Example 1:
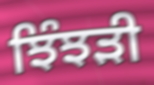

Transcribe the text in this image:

ਝਿੰਝੜੀ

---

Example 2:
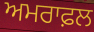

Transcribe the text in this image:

ਅਮਰਾਫ਼ਲ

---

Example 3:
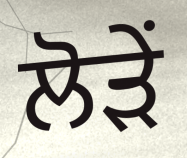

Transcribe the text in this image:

ਲੋੜੇਂ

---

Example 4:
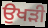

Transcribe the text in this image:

ਉਖੜੀ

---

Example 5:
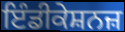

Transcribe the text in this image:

ਇੰਡੀਕੇਸ਼ਨਜ਼